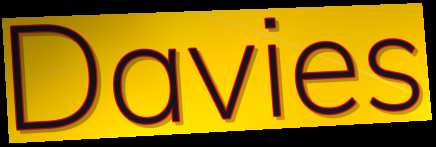
Davies